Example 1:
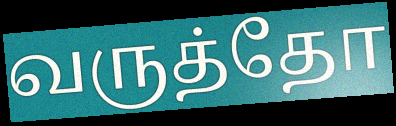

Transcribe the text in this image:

வருத்தோ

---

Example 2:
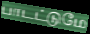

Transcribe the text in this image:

பாடட்டுமே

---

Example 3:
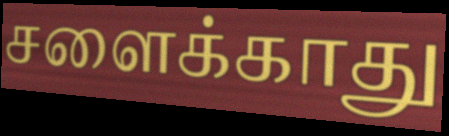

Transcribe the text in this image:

சளைக்காது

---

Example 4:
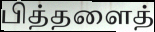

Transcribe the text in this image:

பித்தளைத்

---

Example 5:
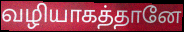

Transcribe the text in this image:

வழியாகத்தானே